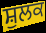
ਸ਼ੁਲਕ